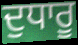
ਦੁਧਾਰੂ